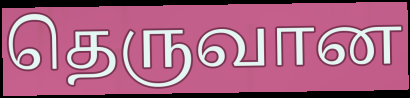
தெருவான